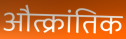
औत्क्रांतिक